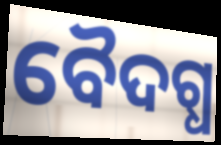
ବୈଦଗ୍ଧ